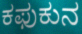
ಕಫುಕುನ